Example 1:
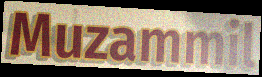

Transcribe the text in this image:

Muzammil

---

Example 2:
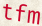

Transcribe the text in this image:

tfm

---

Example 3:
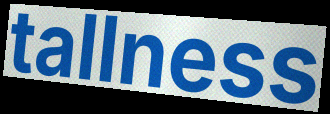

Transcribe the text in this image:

tallness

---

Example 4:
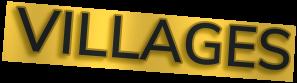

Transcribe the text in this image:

VILLAGES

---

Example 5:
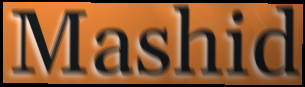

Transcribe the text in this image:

Mashid